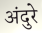
अंदुरे